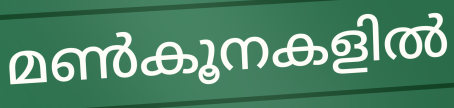
മൺകൂനകളിൽ